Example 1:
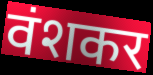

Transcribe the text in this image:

वंशकर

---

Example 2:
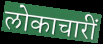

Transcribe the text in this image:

लोकाचारीं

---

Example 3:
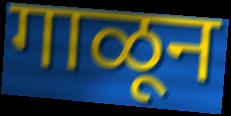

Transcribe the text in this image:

गाळून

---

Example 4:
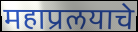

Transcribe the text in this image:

महाप्रलयाचे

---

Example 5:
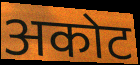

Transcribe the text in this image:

अकोट